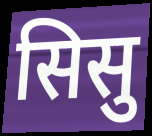
सिसु